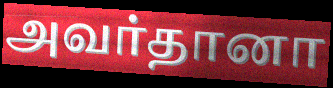
அவர்தானா